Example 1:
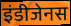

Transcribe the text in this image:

इंडीजेनस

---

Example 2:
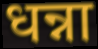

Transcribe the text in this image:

धन्ना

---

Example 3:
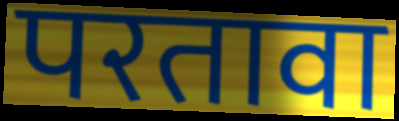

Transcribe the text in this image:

परतावा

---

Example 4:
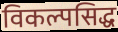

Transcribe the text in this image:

विकल्पसिद्ध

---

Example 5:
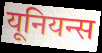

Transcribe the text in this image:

यूनियन्स